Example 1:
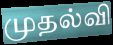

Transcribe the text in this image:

முதல்வி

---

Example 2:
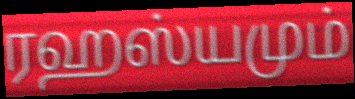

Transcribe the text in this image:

ரஹஸ்யமும்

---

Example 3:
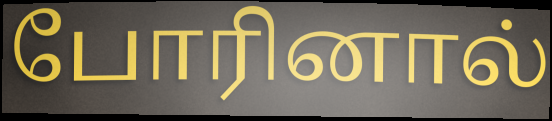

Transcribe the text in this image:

போரினால்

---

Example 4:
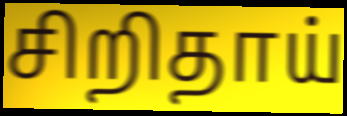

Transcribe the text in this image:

சிறிதாய்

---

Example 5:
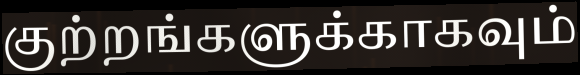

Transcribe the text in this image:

குற்றங்களுக்காகவும்